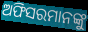
ଅଫିସରମାନଙ୍କୁ